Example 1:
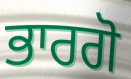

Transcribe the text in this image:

ਭਾਰਗੋ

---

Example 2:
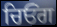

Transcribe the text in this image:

ਚਿਓਂਗ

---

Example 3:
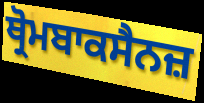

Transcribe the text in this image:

ਥ੍ਰੋਮਬਾਕਸੈਨਜ਼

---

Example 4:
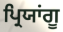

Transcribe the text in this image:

ਪ੍ਰਿਯਾਂਗੂ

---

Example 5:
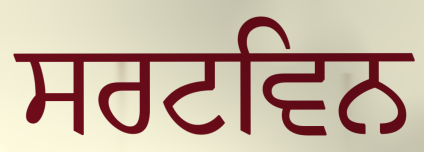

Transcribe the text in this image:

ਸਰਟਵਿਨ